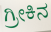
ಗ್ರೀಕಿನ